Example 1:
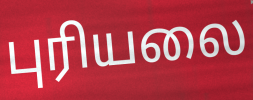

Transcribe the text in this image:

புரியலை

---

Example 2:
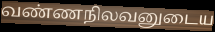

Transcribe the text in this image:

வண்ணநிலவனுடைய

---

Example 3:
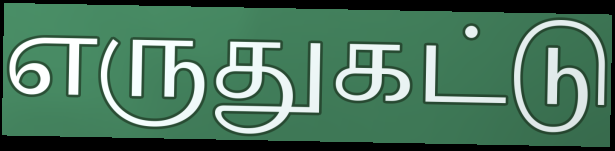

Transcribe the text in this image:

எருதுகட்டு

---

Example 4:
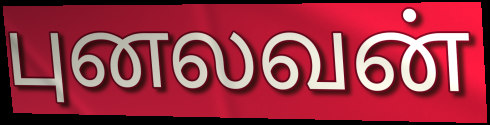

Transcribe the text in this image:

புனலவன்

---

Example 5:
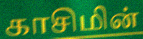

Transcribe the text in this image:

காசிமின்